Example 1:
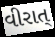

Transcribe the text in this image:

વીરાત્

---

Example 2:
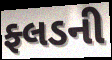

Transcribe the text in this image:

ફ્લડની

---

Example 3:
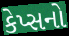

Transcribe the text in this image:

કેપ્સનો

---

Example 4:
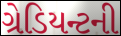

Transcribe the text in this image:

ગ્રેડિયન્ટની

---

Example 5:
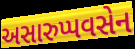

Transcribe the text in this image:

અસારુપ્પવસેન